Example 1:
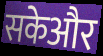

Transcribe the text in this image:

सकेऔर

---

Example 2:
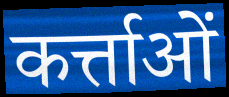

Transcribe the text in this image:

कर्त्ताओं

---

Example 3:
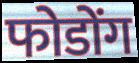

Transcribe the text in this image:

फोडोंग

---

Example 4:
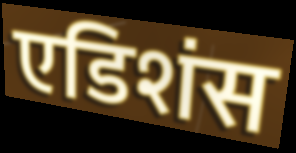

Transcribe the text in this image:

एडिशंस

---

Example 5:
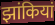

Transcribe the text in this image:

झांकियां